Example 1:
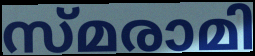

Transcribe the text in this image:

സ്മരാമി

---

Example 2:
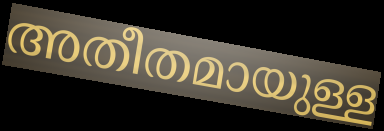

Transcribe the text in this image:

അതീതമായുള്ള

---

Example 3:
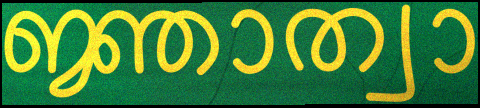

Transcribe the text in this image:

ജ്ഞാത്വാ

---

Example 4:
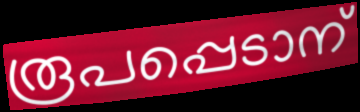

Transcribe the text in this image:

രൂപപ്പെടാന്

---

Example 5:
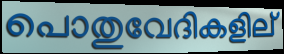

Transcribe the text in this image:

പൊതുവേദികളില്